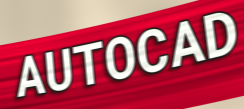
AUTOCAD